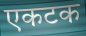
एकटक